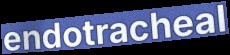
endotracheal